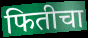
फितीचा